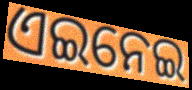
ଏଇନେଇ